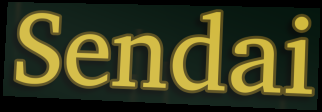
Sendai